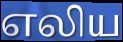
எலிய